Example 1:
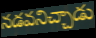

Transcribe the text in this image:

నడవనిచ్చాడు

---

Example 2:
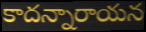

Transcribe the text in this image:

కాదన్నారాయన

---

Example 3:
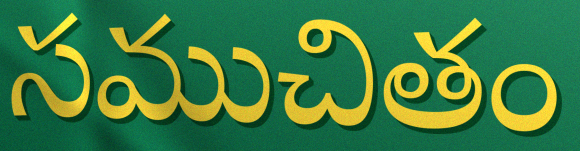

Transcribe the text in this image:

సముచితం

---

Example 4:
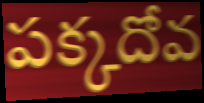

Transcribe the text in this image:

పక్కదోవ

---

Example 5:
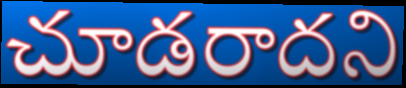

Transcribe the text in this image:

చూడరాదని